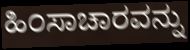
ಹಿಂಸಾಚಾರವನ್ನು